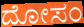
ದೋಸಂ